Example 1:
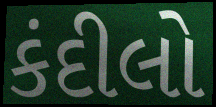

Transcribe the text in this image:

કંદીલો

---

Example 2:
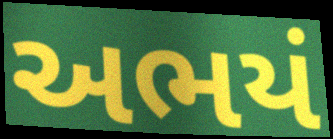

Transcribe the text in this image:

અભયં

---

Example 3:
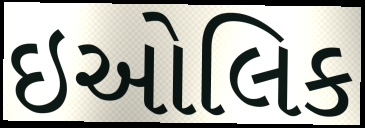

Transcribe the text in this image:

ઇઓલિક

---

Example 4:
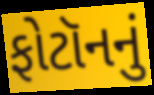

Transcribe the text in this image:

ફોટૉનનું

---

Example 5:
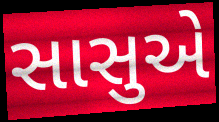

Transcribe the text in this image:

સાસુએ